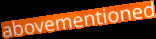
abovementioned